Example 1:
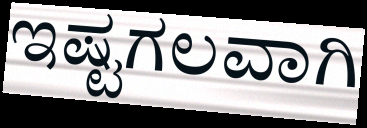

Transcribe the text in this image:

ಇಷ್ಟಗಲವಾಗಿ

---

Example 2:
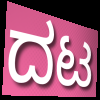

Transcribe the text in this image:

ದಟ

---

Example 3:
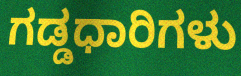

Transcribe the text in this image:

ಗಡ್ಡಧಾರಿಗಳು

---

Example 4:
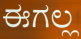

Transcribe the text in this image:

ಈಗಲ್ಲ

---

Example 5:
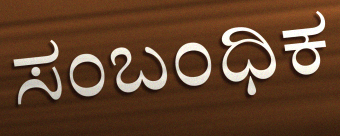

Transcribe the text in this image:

ಸಂಬಂಧಿಕ